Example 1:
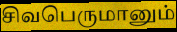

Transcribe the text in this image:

சிவபெருமானும்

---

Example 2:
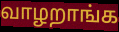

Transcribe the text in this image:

வாழறாங்க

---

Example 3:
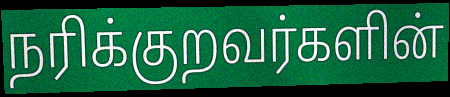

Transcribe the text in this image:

நரிக்குறவர்களின்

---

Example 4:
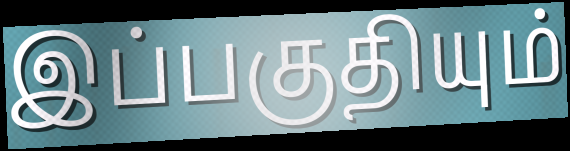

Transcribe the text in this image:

இப்பகுதியும்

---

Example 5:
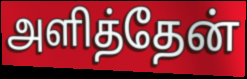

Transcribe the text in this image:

அளித்தேன்